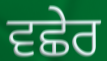
ਵਛੇਰ